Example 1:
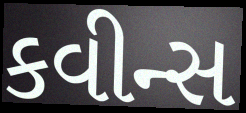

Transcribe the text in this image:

કવીન્સ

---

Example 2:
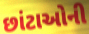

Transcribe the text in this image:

છાંટાઓની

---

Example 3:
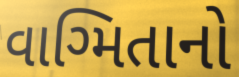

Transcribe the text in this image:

વાગ્મિતાનો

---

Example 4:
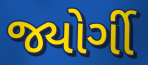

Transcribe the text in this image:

જ્યોર્ગી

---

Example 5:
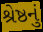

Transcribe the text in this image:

શ્રેષ્ઠનું